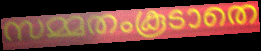
സമ്മതംകൂടാതെ